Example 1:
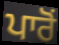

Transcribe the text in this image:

ਪਾਰੋਂ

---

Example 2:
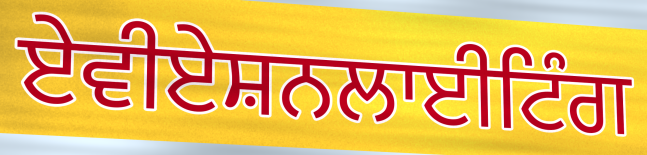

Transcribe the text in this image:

ਏਵੀਏਸ਼ਨਲਾਈਟਿੰਗ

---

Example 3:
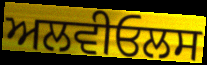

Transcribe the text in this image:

ਅਲਵੀਓਲਸ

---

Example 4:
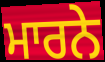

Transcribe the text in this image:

ਮਾਰਨੇ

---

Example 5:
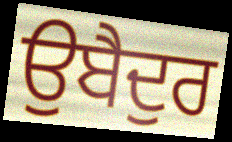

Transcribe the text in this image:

ਉਬੈਦੁਰ